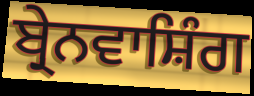
ਬ੍ਰੇਨਵਾਸ਼ਿੰਗ